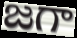
జగా